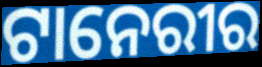
ଟାନେରୀର